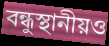
বন্ধুস্থানীয়ও